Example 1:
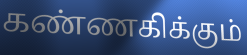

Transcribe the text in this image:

கண்ணகிக்கும்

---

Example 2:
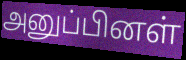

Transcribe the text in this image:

அனுப்பினள்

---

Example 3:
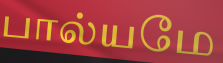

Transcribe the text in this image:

பால்யமே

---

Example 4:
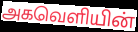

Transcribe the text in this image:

அகவெளியின்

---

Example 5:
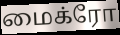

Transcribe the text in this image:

மைக்ரோ